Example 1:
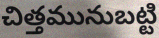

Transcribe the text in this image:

చిత్తమునుబట్టి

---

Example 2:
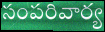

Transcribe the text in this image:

సంపరివార్య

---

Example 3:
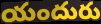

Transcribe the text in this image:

యందురు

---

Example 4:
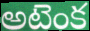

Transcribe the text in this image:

అటెంక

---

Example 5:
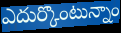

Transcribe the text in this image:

ఎదుర్కొంటున్నాం